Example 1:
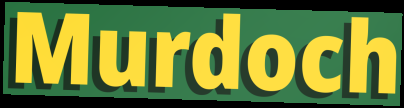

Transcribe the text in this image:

Murdoch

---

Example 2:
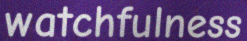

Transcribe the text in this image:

watchfulness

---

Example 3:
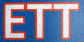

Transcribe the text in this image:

ETT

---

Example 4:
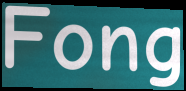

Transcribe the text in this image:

Fong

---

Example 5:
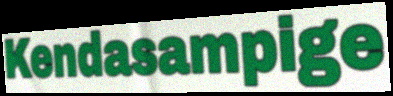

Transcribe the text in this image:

Kendasampige